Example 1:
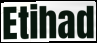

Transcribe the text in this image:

Etihad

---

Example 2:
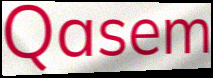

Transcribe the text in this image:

Qasem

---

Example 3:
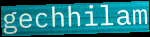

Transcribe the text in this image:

gechhilam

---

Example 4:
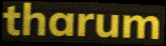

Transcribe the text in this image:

tharum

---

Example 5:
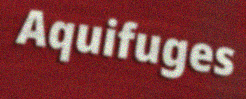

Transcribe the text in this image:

Aquifuges